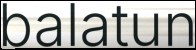
balatun